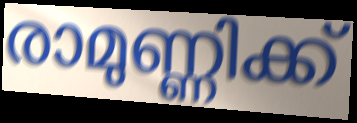
രാമുണ്ണിക്ക്